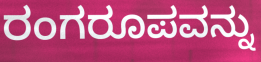
ರಂಗರೂಪವನ್ನು